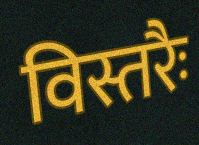
विस्तरैः